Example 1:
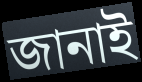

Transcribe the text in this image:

জানাই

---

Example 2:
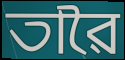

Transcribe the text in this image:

তাৱৈ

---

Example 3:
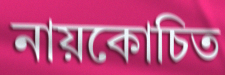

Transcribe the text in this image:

নায়কোচিত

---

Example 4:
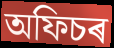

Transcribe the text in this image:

অফিচৰ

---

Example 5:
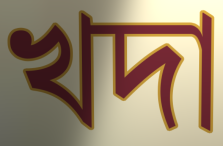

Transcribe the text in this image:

খদা